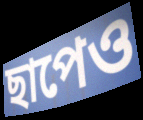
ছাপেও